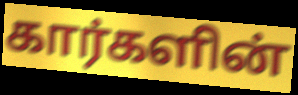
கார்களின்